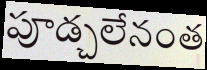
పూడ్చలేనంత